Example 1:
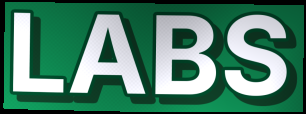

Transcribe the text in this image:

LABS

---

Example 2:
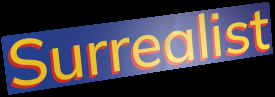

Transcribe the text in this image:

Surrealist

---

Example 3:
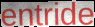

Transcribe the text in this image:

entride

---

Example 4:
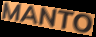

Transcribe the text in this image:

MANTO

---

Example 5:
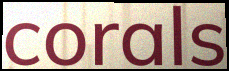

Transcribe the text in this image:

corals